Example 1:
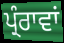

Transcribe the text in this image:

ਪ੍ਰੰਰਾਵਾਂ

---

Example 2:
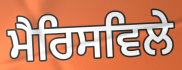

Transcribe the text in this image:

ਮੈਰਿਸਵਿਲੇ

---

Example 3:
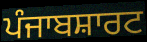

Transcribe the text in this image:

ਪੰਜਾਬਸ਼ਾਰਟ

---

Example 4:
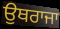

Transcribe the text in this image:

ਉਥਰਾਜਾ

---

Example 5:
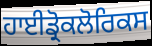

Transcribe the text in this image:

ਹਾਈਡ੍ਰੋਕਲੋਰਿਕਸ